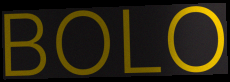
BOLO